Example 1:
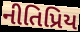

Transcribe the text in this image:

નીતિપ્રિય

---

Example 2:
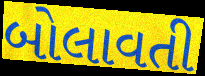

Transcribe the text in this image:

બોલાવતી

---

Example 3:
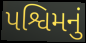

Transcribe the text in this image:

પશ્વિમનું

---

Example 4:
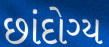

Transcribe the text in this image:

છાંદોગ્ય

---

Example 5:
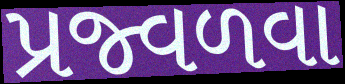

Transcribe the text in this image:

પ્રજ્વળવા